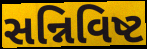
સન્નિવિષ્ટ